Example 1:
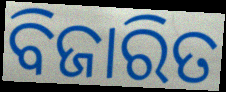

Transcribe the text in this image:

ବିଜାରିତ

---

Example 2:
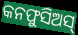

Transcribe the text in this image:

କନଫୁସିଅସ୍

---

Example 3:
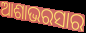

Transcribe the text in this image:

ଆଶାଭରସାର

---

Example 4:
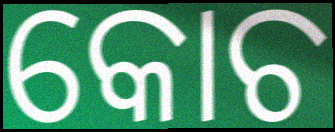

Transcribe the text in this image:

କୋଚ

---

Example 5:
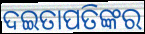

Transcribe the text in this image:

ଦଇତାପତିଙ୍କର